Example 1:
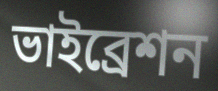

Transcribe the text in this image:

ভাইব্রেশন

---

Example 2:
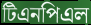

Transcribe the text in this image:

টিএনপিএল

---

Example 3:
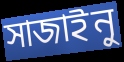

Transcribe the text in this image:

সাজাইনু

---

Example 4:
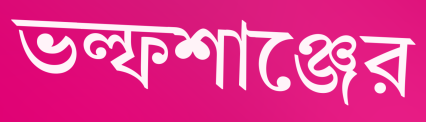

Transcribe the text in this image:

ভল্ফশাঞ্জের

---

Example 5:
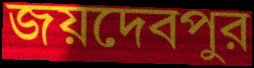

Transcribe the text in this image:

জয়দেবপুর